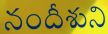
నందీశుని